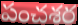
పంచశర